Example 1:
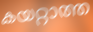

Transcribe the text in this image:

കയറ്റാത്ത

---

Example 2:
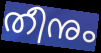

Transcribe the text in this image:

തീനും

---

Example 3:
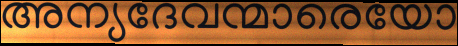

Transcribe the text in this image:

അന്യദേവന്മാരെയോ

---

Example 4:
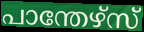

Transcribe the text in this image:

പാന്തേഴ്സ്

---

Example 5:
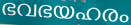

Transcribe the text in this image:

ഭവഭയഹരം